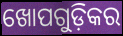
ଖୋପଗୁଡ଼ିକର